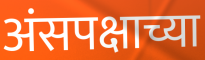
अंसपक्षाच्या